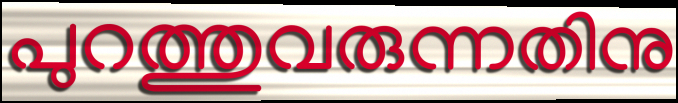
പുറത്തുവരുന്നതിനു